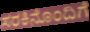
ಸರಕಿನೊಂದಿಗೆ